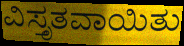
ವಿಸ್ತೃತವಾಯಿತು